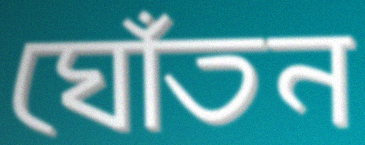
ঘোঁতন